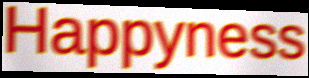
Happyness